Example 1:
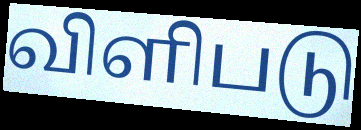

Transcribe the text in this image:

விளிபடு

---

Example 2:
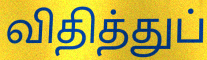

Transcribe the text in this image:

விதித்துப்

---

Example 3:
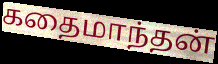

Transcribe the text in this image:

கதைமாந்தன்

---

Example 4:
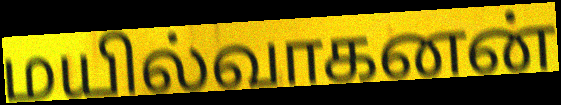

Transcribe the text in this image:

மயில்வாகனன்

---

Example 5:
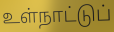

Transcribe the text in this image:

உள்நாட்டுப்